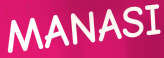
MANASI